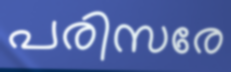
പരിസരേ